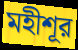
মহীশূর